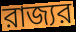
রাজ্যর